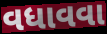
વધાવવા